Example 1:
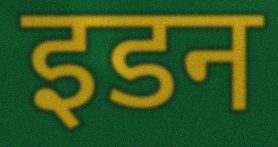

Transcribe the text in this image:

इडन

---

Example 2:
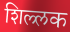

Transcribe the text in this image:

शिल्लक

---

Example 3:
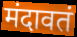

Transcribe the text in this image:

मंदावतं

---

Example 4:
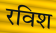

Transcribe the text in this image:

रविश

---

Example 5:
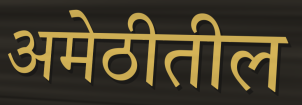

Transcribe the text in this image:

अमेठीतील